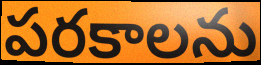
పరకాలను